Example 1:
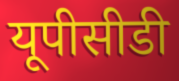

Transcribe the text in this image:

यूपीसीडी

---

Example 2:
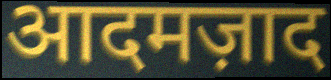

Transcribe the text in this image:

आदमज़ाद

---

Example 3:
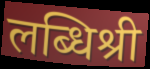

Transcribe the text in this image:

लब्धिश्री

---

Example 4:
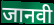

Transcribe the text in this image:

जानवी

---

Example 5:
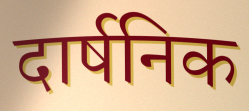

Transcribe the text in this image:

दार्षनिक